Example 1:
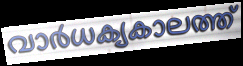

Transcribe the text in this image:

വാർധക്യകാലത്ത്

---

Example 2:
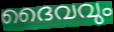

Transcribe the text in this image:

ദൈവവും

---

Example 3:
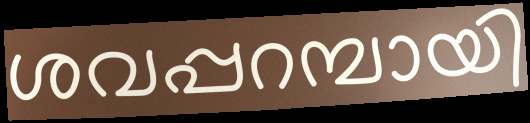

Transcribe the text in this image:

ശവപ്പറമ്പായി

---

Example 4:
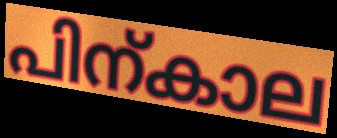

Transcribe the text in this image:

പിന്കാല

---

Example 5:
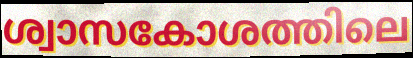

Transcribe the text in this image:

ശ്വാസകോശത്തിലെ